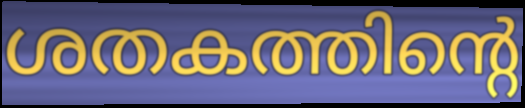
ശതകത്തിന്റെ